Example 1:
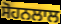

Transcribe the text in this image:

ਸੋਹਨਲਾਲ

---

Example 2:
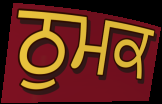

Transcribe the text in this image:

ਠੁਮਕ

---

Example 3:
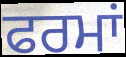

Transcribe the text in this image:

ਫਰਮਾਂ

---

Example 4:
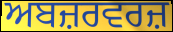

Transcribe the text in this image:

ਅਬਜ਼ਰਵਰਜ਼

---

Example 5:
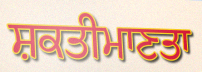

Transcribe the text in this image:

ਸ਼ਕਤੀਮਾਣਤਾ